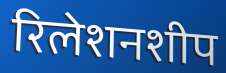
रिलेशनशीप